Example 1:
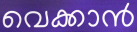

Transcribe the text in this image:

വെക്കാൻ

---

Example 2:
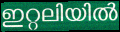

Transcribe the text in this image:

ഇറ്റലിയിൽ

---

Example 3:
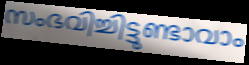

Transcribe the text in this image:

സംഭവിച്ചിട്ടുണ്ടാവാം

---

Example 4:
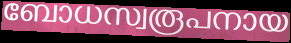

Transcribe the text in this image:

ബോധസ്വരൂപനായ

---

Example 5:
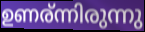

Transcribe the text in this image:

ഉണര്ന്നിരുന്നു